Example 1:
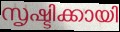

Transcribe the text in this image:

സൃഷ്ടിക്കായി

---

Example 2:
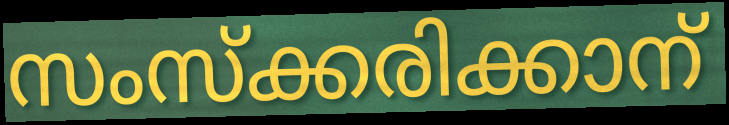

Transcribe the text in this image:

സംസ്ക്കരിക്കാന്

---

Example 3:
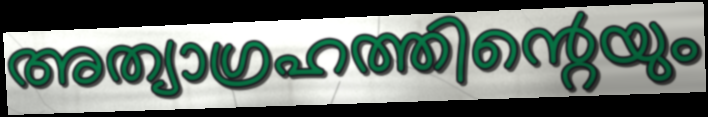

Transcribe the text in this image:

അത്യാഗ്രഹത്തിന്റെയും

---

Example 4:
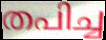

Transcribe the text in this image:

തപിച്ച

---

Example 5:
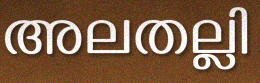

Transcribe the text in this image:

അലതല്ലി